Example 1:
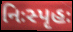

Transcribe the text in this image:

નિઃસ્પૃહઃ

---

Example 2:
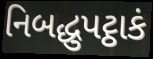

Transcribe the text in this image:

નિબદ્ધુપટ્ઠાકં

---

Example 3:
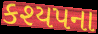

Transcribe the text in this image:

કશ્યપના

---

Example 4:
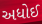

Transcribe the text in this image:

અધોઈ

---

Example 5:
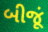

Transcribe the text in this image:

બીજૂં